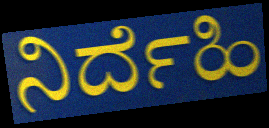
ನಿರ್ದೆಹಿ